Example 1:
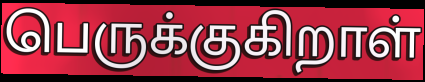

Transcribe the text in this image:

பெருக்குகிறாள்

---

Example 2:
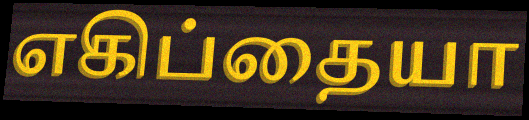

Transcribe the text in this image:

எகிப்தையா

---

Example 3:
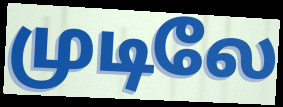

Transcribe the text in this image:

முடிலே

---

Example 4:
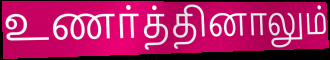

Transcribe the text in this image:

உணர்த்தினாலும்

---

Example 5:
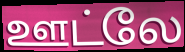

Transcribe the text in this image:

ஊட்லே